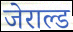
जेराल्ड